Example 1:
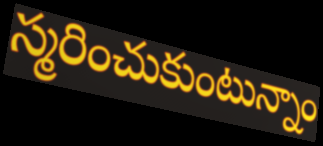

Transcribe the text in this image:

స్మరించుకుంటున్నాం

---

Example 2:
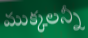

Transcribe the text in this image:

ముక్కలన్నీ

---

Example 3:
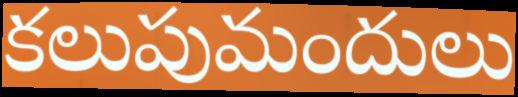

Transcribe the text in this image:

కలుపుమందులు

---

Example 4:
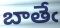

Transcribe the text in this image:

బాతేఁ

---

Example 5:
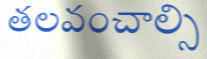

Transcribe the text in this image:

తలవంచాల్సి